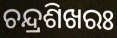
ଚନ୍ଦ୍ରଶିଖରଃ